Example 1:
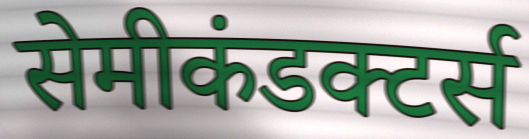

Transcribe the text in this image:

सेमीकंडक्टर्स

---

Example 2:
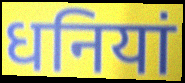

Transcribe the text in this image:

धनियां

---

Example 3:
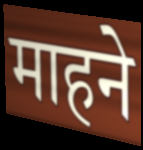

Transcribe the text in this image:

माहने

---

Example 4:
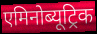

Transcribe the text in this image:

एमिनोब्यूट्रिक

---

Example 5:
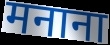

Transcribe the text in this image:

मनाना